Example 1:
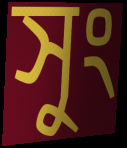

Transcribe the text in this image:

সুং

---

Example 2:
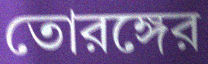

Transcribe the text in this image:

তোরঙ্গের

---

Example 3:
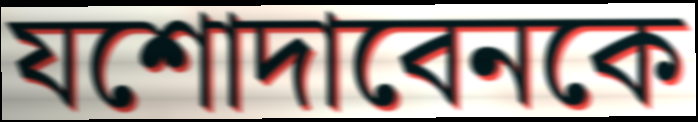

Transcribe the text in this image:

যশোদাবেনকে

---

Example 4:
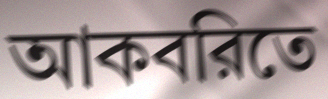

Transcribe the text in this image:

আকবরিতে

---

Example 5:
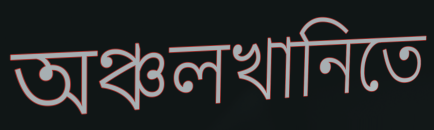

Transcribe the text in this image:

অঞ্চলখানিতে